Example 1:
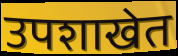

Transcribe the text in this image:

उपशाखेत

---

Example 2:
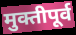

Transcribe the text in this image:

मुक्तीपूर्व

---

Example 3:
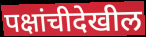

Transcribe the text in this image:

पक्षांचीदेखील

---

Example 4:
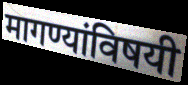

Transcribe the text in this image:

मागण्यांविषयी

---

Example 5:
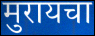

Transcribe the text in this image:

मुरायचा